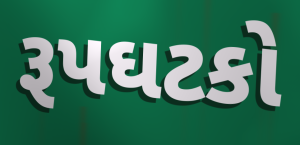
રૂપઘટકો